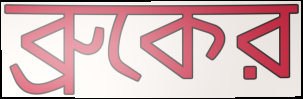
ব্রুকের